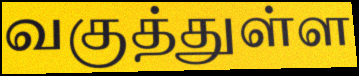
வகுத்துள்ள